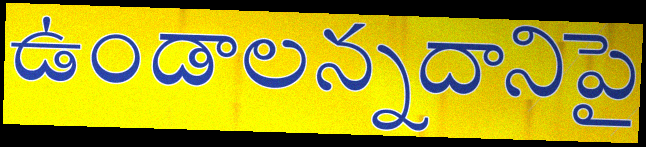
ఉండాలన్నదానిపై